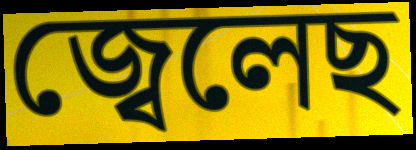
জ্বেলেছ